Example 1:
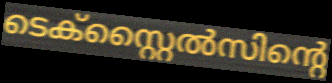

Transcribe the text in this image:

ടെക്സ്റ്റൈൽസിന്റെ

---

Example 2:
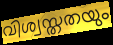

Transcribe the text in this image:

വിശ്വസ്തതയും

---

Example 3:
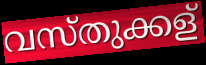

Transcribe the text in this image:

വസ്തുക്കള്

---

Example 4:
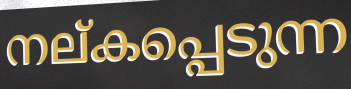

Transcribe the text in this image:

നല്കപ്പെടുന്ന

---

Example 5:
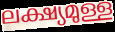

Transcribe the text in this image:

ലക്ഷ്യമുള്ള